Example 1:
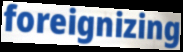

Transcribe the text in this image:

foreignizing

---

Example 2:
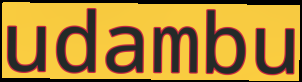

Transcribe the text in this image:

udambu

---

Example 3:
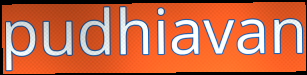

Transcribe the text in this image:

pudhiavan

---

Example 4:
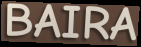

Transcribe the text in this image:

BAIRA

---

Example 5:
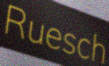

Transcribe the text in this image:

Ruesch